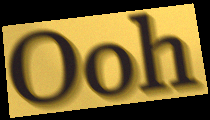
Ooh